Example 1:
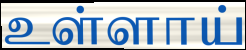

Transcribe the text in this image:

உள்ளாய்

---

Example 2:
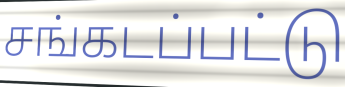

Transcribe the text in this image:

சங்கடப்பட்டு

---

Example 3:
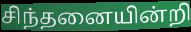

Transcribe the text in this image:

சிந்தனையின்றி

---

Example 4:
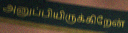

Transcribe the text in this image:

அனுப்பியிருக்கிறேன்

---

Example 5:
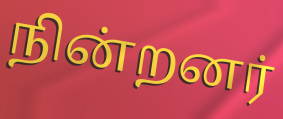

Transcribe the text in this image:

நின்றனர்